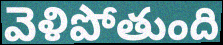
వెళిపోతుంది